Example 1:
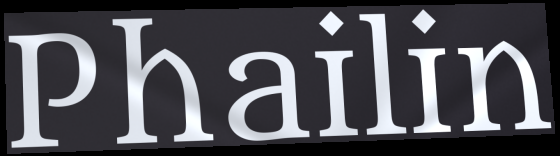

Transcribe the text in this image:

Phailin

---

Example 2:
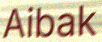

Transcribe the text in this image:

Aibak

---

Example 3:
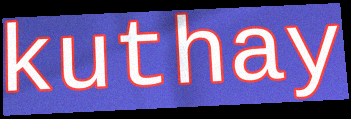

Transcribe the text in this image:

kuthay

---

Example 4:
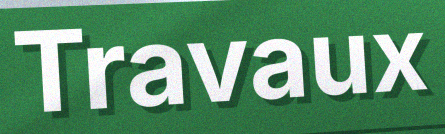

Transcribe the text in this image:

Travaux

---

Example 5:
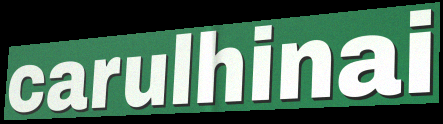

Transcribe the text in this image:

carulhinai